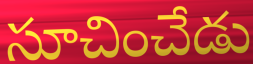
సూచించేడు